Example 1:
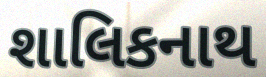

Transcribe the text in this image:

શાલિકનાથ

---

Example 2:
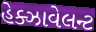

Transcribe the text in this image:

હેક્ઝાવેલન્ટ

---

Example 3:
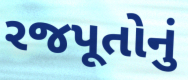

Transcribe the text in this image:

રજપૂતોનું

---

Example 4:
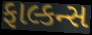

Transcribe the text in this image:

ફાલ્કન્સ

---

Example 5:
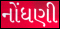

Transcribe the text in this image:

નોંધણી